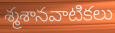
శ్మశానవాటికలు